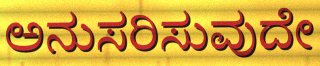
ಅನುಸರಿಸುವುದೇ